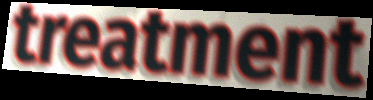
treatment